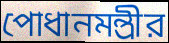
পোধানমন্ত্রীর